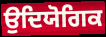
ਉਦਿਯੋਗਿਕ